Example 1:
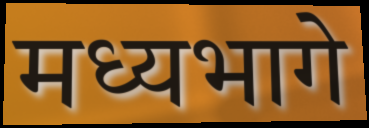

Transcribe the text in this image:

मध्यभागे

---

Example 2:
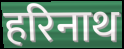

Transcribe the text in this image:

हरिनाथ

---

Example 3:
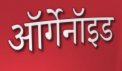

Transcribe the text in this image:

ऑर्गेनॉइड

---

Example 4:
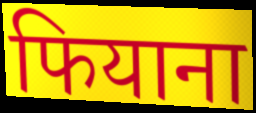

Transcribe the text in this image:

फियाना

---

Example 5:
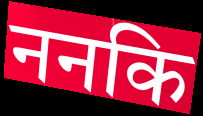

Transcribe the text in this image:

ननकि